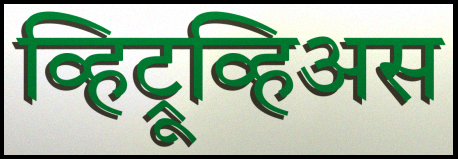
व्हिट्रूव्हिअस